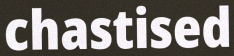
chastised